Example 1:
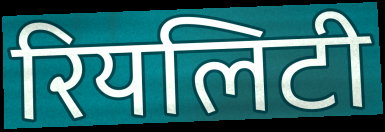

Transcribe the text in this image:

रियलिटी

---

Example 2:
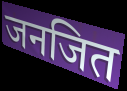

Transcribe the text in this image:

जनजित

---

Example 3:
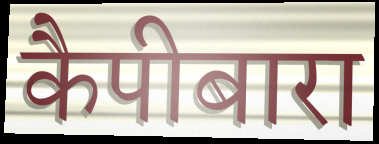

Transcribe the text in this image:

कैपीबारा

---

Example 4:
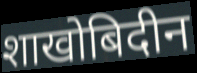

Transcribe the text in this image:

शाखोबिदीन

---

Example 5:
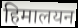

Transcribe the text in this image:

हिमालयन